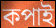
কপাই